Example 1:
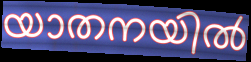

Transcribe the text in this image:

യാതനയിൽ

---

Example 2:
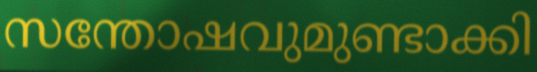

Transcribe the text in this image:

സന്തോഷവുമുണ്ടാക്കി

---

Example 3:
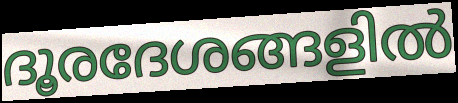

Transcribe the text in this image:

ദൂരദേശങ്ങളിൽ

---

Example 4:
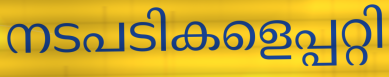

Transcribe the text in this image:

നടപടികളെപ്പറ്റി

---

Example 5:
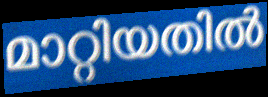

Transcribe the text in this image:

മാറ്റിയതിൽ